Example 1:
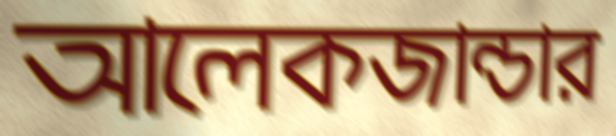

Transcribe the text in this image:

আলেকজান্ডার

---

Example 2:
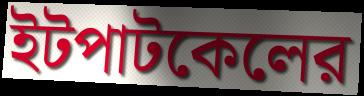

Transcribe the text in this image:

ইটপাটকেলের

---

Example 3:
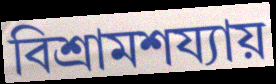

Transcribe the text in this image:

বিশ্রামশয্যায়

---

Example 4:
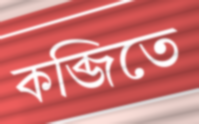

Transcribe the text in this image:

কব্জিতে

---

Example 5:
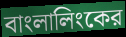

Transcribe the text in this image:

বাংলালিংকের